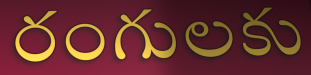
రంగులకు